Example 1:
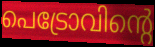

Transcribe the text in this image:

പെട്രോവിന്റെ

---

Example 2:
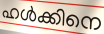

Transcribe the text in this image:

ഹൾക്കിനെ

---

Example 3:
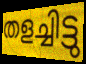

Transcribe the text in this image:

തളച്ചിട്ടു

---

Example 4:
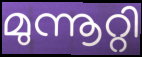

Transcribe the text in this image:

മുന്നൂറ്റി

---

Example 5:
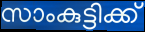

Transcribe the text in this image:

സാംകുട്ടിക്ക്